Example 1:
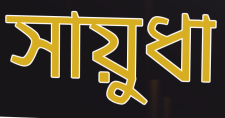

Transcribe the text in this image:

সায়ুধা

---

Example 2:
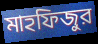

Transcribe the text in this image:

মাহফিজুর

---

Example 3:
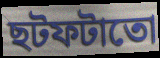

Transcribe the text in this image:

ছটফটাতো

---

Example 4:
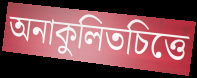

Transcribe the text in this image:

অনাকুলিতচিত্তে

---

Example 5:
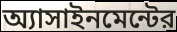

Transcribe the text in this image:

অ্যাসাইনমেন্টের